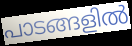
പാടങ്ങളിൽ